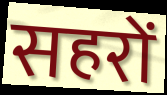
सहरों